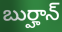
బుర్హాన్